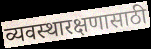
व्यवस्थारक्षणासाठी